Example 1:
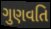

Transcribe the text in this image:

ગુણવતિ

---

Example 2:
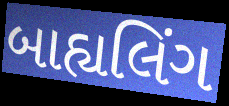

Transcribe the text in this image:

બાહ્યલિંગ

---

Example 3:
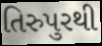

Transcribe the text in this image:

તિરુપુરથી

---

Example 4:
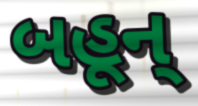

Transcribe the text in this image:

બહૂન્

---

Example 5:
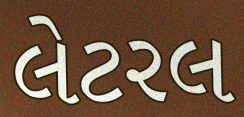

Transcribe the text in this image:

લેટરલ